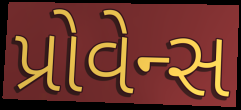
પ્રોવેન્સ